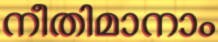
നീതിമാനാം